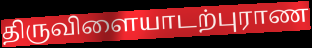
திருவிளையாடற்புராண